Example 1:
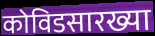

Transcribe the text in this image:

कोविडसारख्या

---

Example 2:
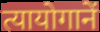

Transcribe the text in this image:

त्यायोगानें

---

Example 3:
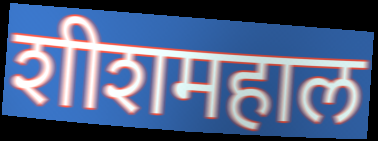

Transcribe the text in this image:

शीशमहाल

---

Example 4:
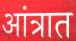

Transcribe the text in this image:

आंत्रात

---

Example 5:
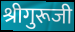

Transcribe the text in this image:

श्रीगुरूजी